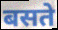
बसते